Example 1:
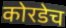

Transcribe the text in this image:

कोरडेच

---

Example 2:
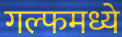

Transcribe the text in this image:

गल्फमध्ये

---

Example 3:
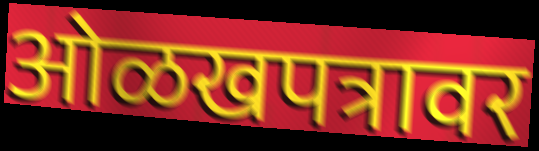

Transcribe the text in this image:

ओळखपत्रावर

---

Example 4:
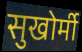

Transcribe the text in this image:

सुखोर्मी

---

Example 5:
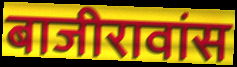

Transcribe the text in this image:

बाजीरावांस